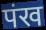
पंख